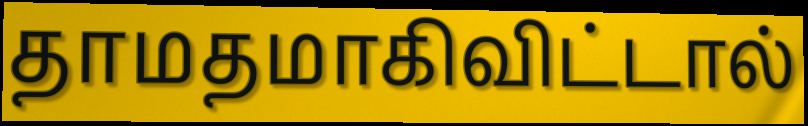
தாமதமாகிவிட்டால்